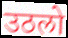
उठलो